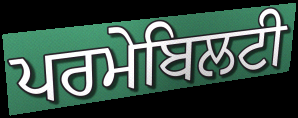
ਪਰਮੇਬਿਲਟੀ